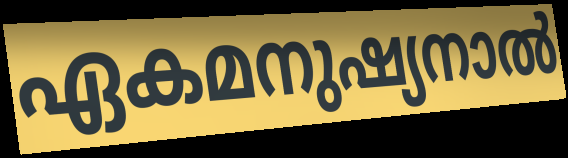
ഏകമനുഷ്യനാൽ